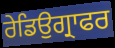
ਰੇਡਿਉਗ੍ਰਾਫਰ